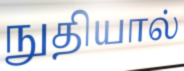
நுதியால்